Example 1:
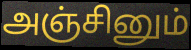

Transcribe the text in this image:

அஞ்சினும்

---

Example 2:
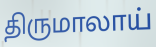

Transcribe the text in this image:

திருமாலாய்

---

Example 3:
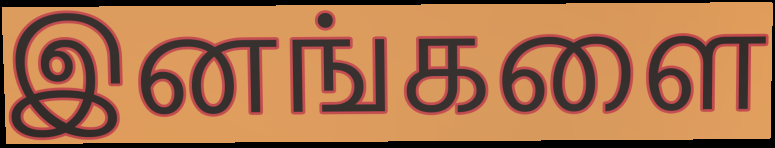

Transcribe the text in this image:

இனங்களை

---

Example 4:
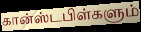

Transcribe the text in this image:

கான்ஸ்டபிள்களும்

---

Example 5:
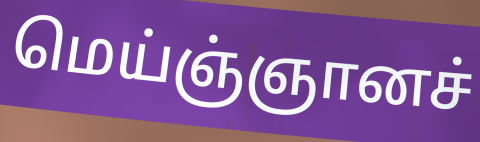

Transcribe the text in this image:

மெய்ஞ்ஞானச்